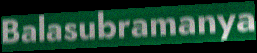
Balasubramanya